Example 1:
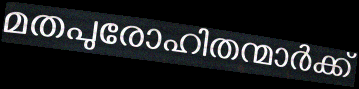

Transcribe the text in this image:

മതപുരോഹിതന്മാർക്ക്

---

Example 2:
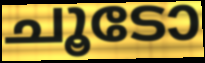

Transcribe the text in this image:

ചൂടോ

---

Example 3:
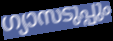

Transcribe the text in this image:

ഗ്യാസടുപ്പും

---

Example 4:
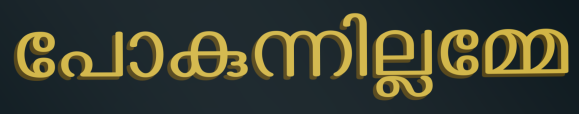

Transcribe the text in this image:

പോകുന്നില്ലമ്മേ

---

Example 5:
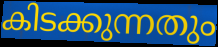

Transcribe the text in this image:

കിടക്കുന്നതും